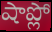
షాప్లో